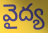
వైద్య